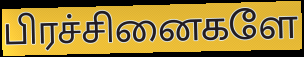
பிரச்சினைகளே